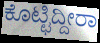
ಕೊಟ್ಟಿದ್ದೀರಾ